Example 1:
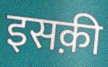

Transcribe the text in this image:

इसक़ी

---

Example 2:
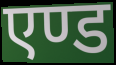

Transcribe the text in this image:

एण्ड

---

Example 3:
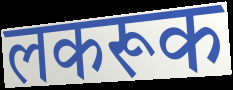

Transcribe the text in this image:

लकरूक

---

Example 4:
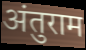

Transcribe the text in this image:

अंतुराम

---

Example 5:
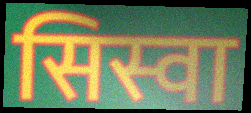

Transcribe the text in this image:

सिस्वा